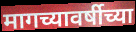
मागच्यावर्षीच्या